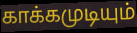
காக்கமுடியும்